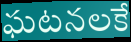
ఘటనలకే